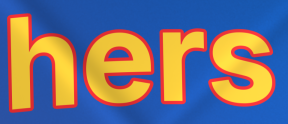
hers